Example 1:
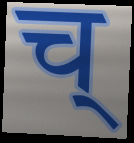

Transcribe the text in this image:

च्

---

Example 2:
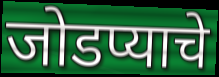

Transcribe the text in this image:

जोडप्याचे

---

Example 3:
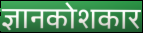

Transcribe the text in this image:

ज्ञानकोशकार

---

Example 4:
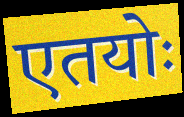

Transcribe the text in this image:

एतयोः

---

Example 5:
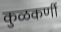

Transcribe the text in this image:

कुळकर्णी